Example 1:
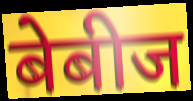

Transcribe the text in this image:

बेबीज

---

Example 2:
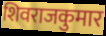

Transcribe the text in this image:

शिवराजकुमार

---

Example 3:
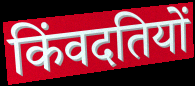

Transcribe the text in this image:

किंवदतियों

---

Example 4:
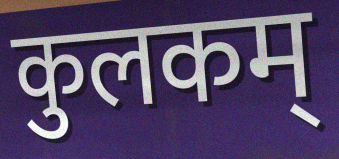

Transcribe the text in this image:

कुलकम्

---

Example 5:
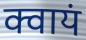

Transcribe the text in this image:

क्वायं